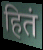
हितं